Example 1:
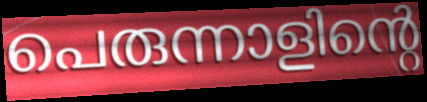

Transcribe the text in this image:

പെരുന്നാളിന്റെ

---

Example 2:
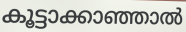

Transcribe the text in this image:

കൂട്ടാക്കാഞ്ഞാൽ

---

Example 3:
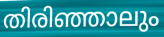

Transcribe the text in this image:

തിരിഞ്ഞാലും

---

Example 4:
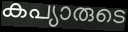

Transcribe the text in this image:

കപ്യാരുടെ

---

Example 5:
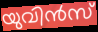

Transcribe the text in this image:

യുവിൻസ്